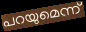
പറയുമെന്ന്